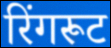
रिंगरूट